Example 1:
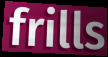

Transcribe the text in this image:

frills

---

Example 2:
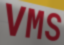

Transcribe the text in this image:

VMS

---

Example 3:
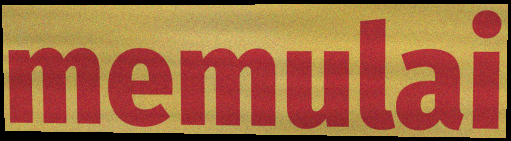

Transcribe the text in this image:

memulai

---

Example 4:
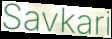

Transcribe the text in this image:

Savkari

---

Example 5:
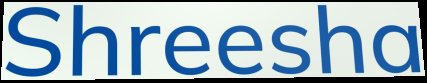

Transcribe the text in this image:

Shreesha